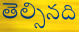
తెల్సినది